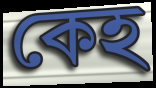
কেহ